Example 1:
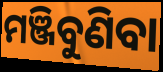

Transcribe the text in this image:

ମଞ୍ଜିବୁଣିବା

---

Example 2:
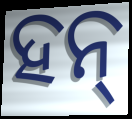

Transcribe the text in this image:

ହନ୍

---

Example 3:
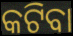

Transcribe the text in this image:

କଟିବା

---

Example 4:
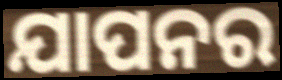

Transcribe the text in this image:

ଯାପନର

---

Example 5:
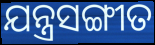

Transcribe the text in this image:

ଯନ୍ତ୍ରସଙ୍ଗୀତ